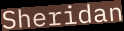
Sheridan